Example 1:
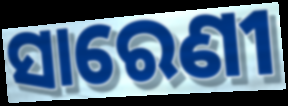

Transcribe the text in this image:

ସାରେଣୀ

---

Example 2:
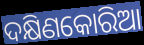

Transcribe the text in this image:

ଦକ୍ଷିଣକୋରିଆ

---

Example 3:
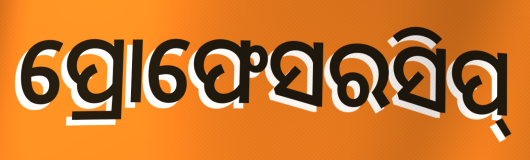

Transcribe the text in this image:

ପ୍ରୋଫେସରସିପ୍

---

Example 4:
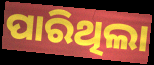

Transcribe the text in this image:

ପାରିଥିଲା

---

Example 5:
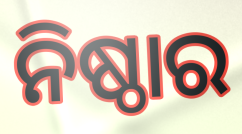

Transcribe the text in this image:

ନିଷ୍ଠାର